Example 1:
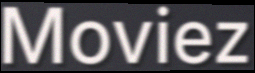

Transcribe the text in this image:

Moviez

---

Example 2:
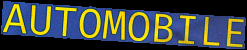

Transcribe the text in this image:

AUTOMOBILE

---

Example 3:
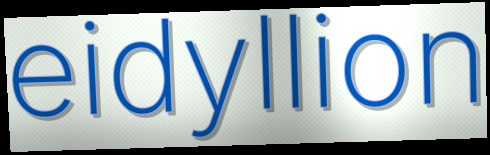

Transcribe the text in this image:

eidyllion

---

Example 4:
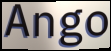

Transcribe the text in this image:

Ango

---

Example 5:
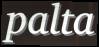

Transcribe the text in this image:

palta